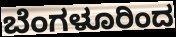
ಬೆಂಗಳೂರಿಂದ